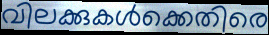
വിലക്കുകൾക്കെതിരെ